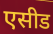
एसीड